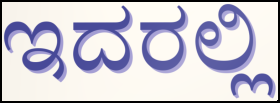
ಇದರಲ್ಲಿ